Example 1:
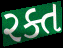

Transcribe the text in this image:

રક્ત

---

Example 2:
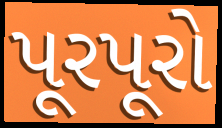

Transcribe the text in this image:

પૂરપૂરો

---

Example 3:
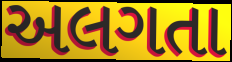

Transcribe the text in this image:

અલગતા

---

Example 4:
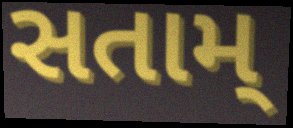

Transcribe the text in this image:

સતામ્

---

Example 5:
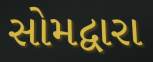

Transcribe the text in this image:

સોમદ્વારા